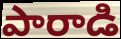
పారాడి